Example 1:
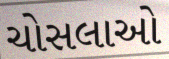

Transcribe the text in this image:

ચોસલાઓ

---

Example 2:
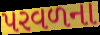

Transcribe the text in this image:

પરવળના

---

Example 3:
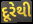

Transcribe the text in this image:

દૂરેથી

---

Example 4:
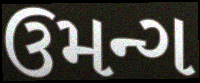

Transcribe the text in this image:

ઉમન્ગ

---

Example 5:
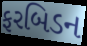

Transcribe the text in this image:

ફરબિડન